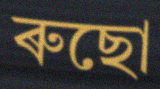
ৰুছো